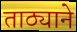
ताठ्याने